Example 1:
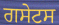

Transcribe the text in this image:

ਗਸੇਟਸ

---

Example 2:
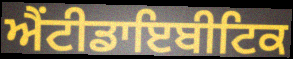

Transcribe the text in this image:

ਐਂਟੀਡਾਇਬੀਟਿਕ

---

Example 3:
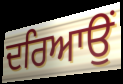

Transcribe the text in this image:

ਦਰਿਆਉਂ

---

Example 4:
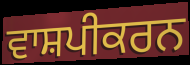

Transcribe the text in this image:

ਵਾਸ਼ਪੀਕਰਨ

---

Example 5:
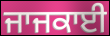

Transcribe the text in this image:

ਜਾਜਕਾਈ